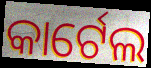
କାର୍ଟେଲ